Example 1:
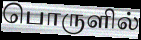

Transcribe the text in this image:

பொருளில்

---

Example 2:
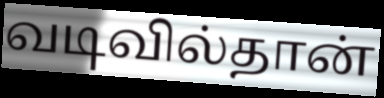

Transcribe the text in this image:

வடிவில்தான்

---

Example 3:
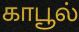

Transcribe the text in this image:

காபூல்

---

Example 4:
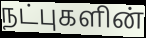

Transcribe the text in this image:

நட்புகளின்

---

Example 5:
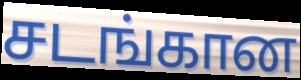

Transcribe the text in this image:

சடங்கான